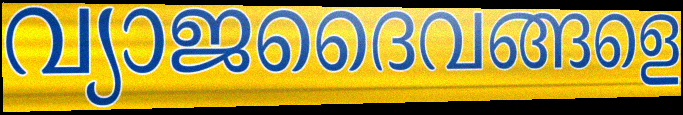
വ്യാജദൈവങ്ങളെ